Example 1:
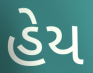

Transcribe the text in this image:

હેય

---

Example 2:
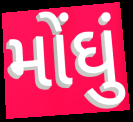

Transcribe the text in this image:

મોંઘું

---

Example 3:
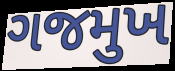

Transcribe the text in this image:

ગજમુખ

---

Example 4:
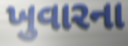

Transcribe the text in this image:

ખુવારના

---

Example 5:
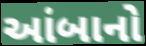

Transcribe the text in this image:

આંબાનો